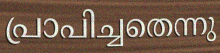
പ്രാപിച്ചതെന്നു